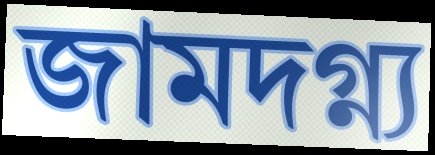
জামদগ্ন্য